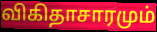
விகிதாசாரமும்